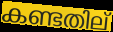
കണ്ടതില്